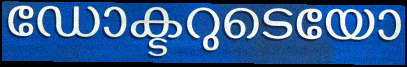
ഡോക്ടറുടെയോ